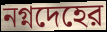
নগ্নদেহের